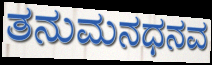
ತನುಮನಧನವ